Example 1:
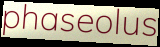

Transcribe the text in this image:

phaseolus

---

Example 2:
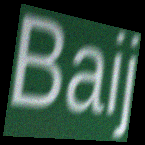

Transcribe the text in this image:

Baij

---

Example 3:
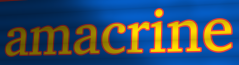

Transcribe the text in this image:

amacrine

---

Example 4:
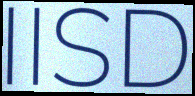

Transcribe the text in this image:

IISD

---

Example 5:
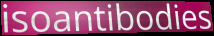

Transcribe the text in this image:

isoantibodies